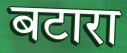
बटारा